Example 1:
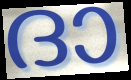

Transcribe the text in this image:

ദാ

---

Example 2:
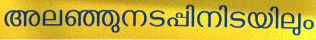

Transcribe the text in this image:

അലഞ്ഞുനടപ്പിനിടയിലും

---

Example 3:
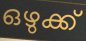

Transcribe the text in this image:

ഒഴുക്ക്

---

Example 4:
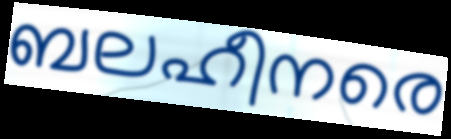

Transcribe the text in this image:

ബലഹീനരെ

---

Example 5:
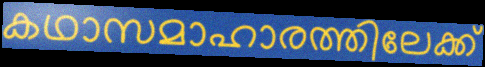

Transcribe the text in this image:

കഥാസമാഹാരത്തിലേക്ക്